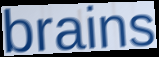
brains